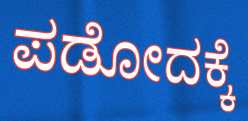
ಪಡೋದಕ್ಕೆ